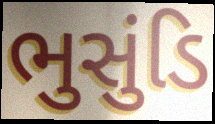
ભુસુંડિ